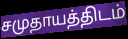
சமுதாயத்திடம்